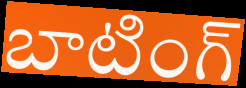
బాటింగ్